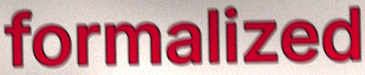
formalized